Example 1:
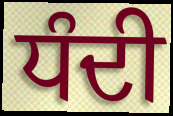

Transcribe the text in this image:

ਧੰਦੀ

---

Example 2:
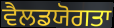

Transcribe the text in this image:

ਵੈਲਡਯੋਗਤਾ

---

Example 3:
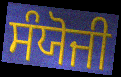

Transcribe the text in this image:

ਸੰਯੋਜੀ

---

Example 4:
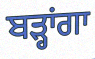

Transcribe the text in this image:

ਬੜ੍ਹਾਂਗਾ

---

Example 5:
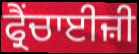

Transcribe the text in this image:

ਫ੍ਰੈਂਚਾਈਜ਼ੀ